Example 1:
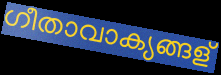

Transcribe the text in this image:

ഗീതാവാക്യങ്ങള്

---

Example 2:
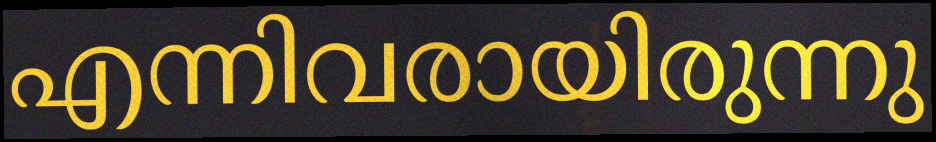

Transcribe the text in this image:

എന്നിവരായിരുന്നു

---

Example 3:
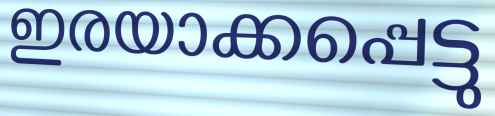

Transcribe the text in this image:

ഇരയാക്കപ്പെട്ടു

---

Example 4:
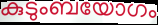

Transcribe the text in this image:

കുടുംബയോഗം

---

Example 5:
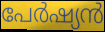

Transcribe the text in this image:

പേർഷ്യൻ